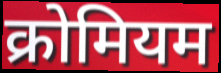
क्रोमियम